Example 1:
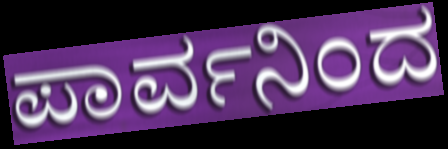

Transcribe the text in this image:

ಪಾರ್ವನಿಂದ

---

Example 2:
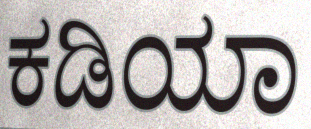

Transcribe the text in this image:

ಕಡಿಯಾ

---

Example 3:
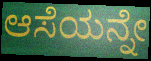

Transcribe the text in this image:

ಆಸೆಯನ್ನೇ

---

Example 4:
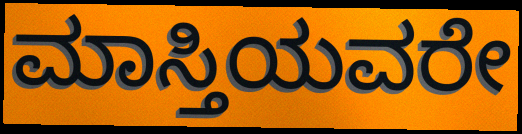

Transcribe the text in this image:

ಮಾಸ್ತಿಯವರೇ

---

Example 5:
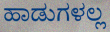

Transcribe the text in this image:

ಹಾಡುಗಳಲ್ಲ